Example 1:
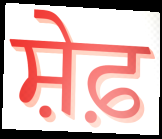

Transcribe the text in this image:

ਸ਼ੇਫ਼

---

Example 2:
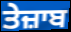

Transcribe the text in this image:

ਤੇਜ਼ਾਬ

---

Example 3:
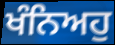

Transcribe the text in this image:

ਖੰਨਿਅਹੁ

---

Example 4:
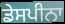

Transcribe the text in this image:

ਡੇਸਪੀਨਾ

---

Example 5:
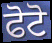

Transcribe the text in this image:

ਫੋਟੋ